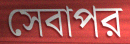
সেবাপর